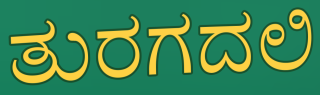
ತುರಗದಲಿ